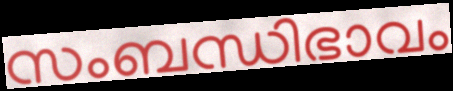
സംബന്ധിഭാവം